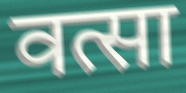
वत्सा